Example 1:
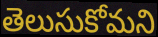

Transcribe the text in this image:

తెలుసుకోమని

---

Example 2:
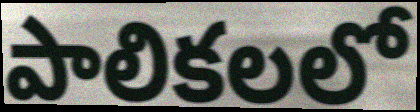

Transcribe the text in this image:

పాలికలలో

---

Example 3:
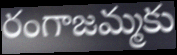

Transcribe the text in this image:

రంగాజమ్మకు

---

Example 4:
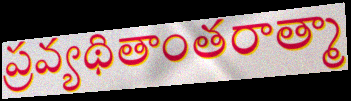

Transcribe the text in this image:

ప్రవ్యథితాంతరాత్మా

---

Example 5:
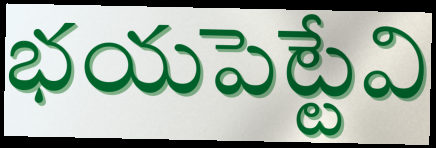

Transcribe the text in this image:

భయపెట్టేవి